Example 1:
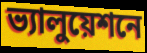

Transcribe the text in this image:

ভ্যালুয়েশনে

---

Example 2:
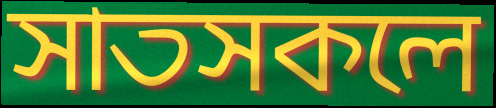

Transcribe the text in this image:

সাতসকলে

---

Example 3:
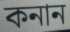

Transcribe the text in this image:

কনান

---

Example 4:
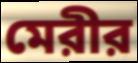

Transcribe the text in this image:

মেরীর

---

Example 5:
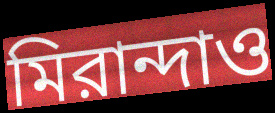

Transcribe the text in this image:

মিরান্দাও